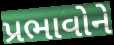
પ્રભાવોને